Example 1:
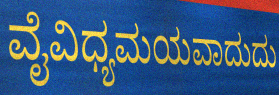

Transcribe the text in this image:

ವೈವಿಧ್ಯಮಯವಾದುದು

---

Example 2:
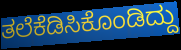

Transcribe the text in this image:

ತಲೆಕೆಡಿಸಿಕೊಂಡಿದ್ದು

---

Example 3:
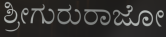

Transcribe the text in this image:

ಶ್ರೀಗುರುರಾಜೋ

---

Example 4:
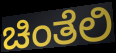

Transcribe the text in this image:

ಚಿಂತೆಲಿ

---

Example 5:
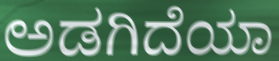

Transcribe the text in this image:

ಅಡಗಿದೆಯಾ